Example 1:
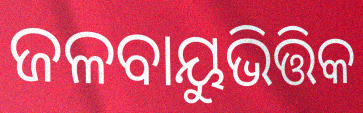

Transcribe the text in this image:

ଜଳବାୟୁଭିତ୍ତିକ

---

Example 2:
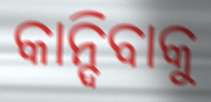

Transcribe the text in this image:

କାନ୍ଦିବାକୁ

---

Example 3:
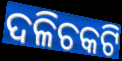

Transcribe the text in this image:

ଦଳିଚକଟି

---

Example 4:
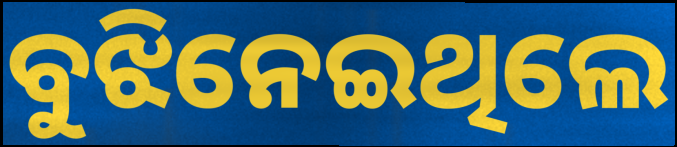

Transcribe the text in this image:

ବୁଝିନେଇଥିଲେ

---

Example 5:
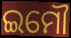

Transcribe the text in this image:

ଇମୌ